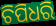
ଚିପିଧରି